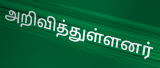
அறிவித்துள்ளனர்